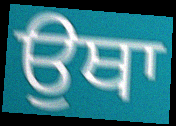
ਉਥਾ